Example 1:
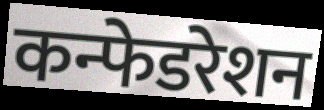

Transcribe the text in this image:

कन्‍फेडरेशन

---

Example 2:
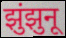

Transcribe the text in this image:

झुंझुनू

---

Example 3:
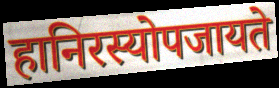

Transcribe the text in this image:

हानिरस्योपजायते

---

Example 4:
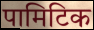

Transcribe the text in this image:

पामिटिक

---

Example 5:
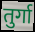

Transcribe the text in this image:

तुर्गा